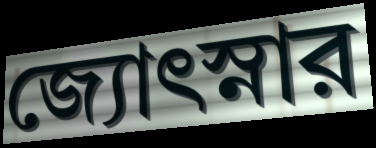
জ্যোৎস্নার